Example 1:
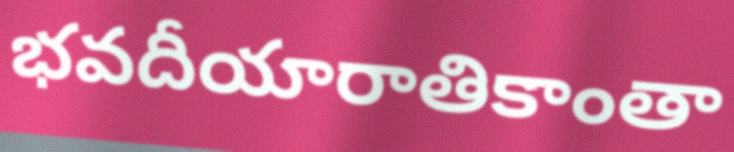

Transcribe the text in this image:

భవదీయారాతికాంతా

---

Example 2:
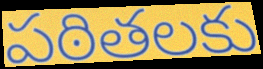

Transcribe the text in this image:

పఠితలకు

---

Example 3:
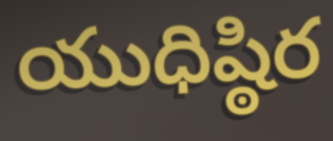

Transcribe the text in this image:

యుధిష్ఠిర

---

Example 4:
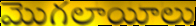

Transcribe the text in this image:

మొగలాయీలు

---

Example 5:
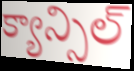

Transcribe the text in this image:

క్యాన్సిల్